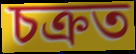
চক্ৰত